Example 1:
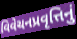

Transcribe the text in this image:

વિવેચનપ્રવૃત્તિનું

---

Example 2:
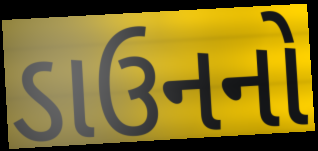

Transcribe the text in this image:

ડાઉનનો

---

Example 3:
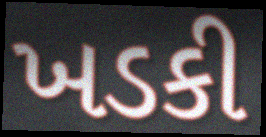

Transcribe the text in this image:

ખડકી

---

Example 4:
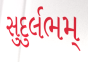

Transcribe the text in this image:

સુદુર્લભમ્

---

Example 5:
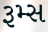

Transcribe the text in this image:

રૂમ્સ